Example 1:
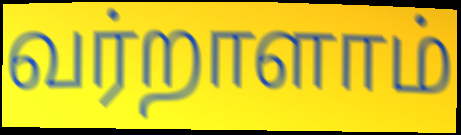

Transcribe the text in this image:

வர்றாளாம்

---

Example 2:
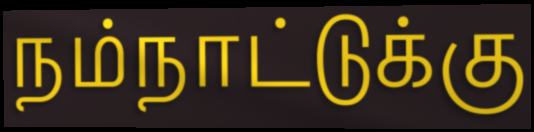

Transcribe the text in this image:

நம்நாட்டுக்கு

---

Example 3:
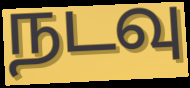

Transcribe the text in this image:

நடவு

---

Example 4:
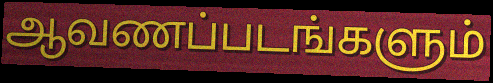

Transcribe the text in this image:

ஆவணப்படங்களும்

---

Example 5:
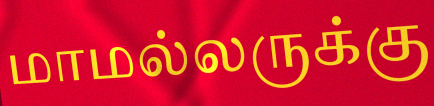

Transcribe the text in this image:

மாமல்லருக்கு